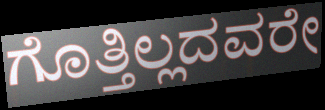
ಗೊತ್ತಿಲ್ಲದವರೇ